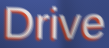
Drive